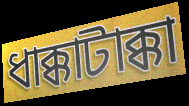
ধাক্কাটাক্কা